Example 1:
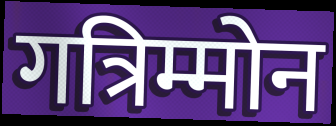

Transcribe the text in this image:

गत्रिम्मोन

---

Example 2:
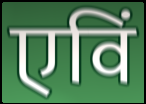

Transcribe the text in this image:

एविं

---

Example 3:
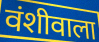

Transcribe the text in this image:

वंशीवाला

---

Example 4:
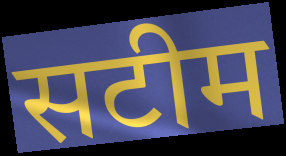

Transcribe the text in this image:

सटीम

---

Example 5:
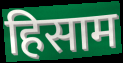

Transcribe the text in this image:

हिसाम